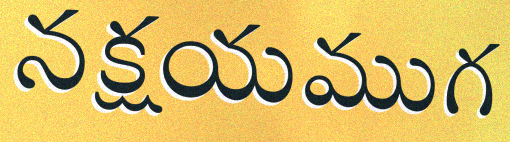
నక్షయముగ